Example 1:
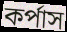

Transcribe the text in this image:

কর্পাস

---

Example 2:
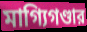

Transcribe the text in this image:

মাগ্যিগণ্ডার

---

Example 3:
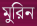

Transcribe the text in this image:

মুরিন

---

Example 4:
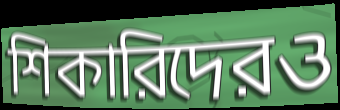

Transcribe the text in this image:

শিকারিদেরও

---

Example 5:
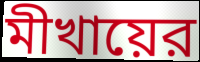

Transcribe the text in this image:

মীখায়ের